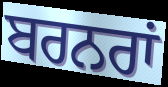
ਬਰਨਰਾਂ